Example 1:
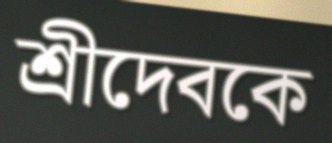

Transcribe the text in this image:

শ্রীদেবকে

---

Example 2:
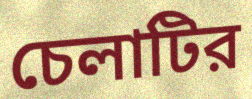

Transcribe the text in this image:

চেলাটির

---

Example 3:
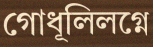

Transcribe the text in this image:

গোধূলিলগ্নে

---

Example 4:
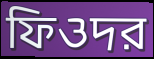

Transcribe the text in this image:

ফিওদর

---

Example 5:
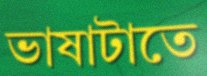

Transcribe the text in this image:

ভাষাটাতে